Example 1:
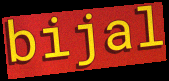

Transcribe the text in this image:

bijal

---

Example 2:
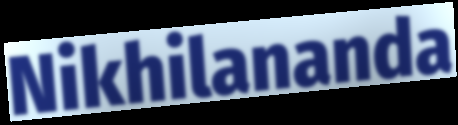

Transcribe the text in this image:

Nikhilananda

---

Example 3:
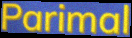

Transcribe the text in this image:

Parimal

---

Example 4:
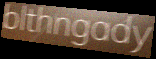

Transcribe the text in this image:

blthngady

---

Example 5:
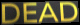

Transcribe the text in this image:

DEAD